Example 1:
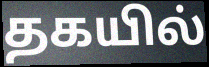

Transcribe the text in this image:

தகயில்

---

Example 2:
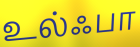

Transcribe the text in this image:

உல்ஃபா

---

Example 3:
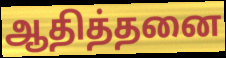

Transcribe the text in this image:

ஆதித்தனை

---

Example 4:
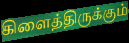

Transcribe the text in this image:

கிளைத்திருக்கும்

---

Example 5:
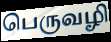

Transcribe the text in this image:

பெருவழி